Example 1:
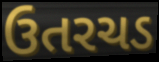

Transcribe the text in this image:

ઉતરચડ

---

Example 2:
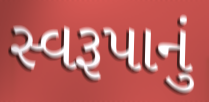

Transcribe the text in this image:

સ્વરૂપાનું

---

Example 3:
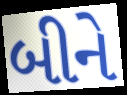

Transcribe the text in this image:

બીને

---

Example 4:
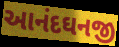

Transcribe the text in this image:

આનંદઘનજી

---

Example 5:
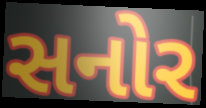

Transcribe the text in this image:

સનોર